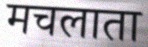
मचलाता